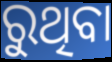
ରୁଥିବା